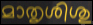
മാതൃശിശു